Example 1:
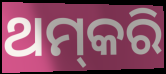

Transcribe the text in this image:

ଥମ୍‌କରି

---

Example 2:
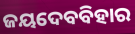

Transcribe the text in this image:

ଜୟଦେବବିହାର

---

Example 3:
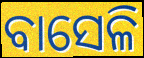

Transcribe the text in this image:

ବାସେଳି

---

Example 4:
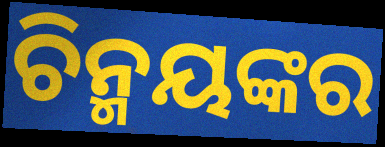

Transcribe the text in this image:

ଚିନ୍ମୟଙ୍କର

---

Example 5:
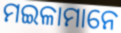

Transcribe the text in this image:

ମଇଳାମାନେ